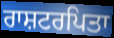
ਰਾਸ਼ਟਰਪਿਤਾ